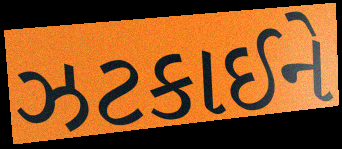
ઝટકાઈને